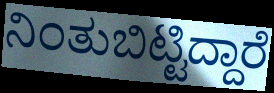
ನಿಂತುಬಿಟ್ಟಿದ್ದಾರೆ